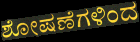
ಶೋಷಣೆಗಳಿಂದ